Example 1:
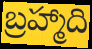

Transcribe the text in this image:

బ్రహ్మాది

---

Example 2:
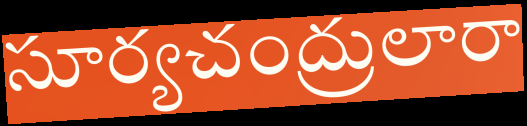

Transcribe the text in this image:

సూర్యచంద్రులారా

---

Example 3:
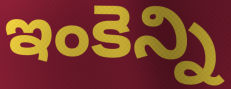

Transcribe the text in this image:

ఇంకెన్ని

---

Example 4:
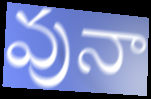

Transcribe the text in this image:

వునా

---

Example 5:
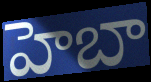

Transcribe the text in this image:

హెబా